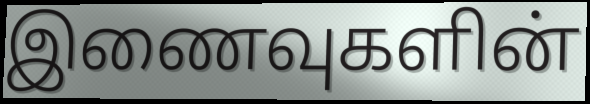
இணைவுகளின்